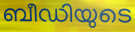
ബീഡിയുടെ